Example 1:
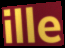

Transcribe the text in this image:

ille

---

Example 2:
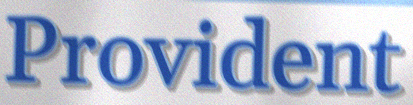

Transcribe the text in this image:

Provident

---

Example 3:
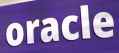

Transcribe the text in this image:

oracle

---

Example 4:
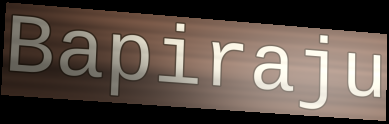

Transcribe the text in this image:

Bapiraju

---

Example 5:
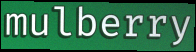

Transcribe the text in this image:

mulberry